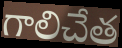
గాలిచేత